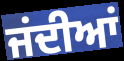
ਜਂਦੀਆਂ